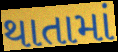
થાતામાં